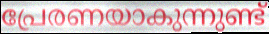
പ്രേരണയാകുന്നുണ്ട്